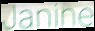
Janine